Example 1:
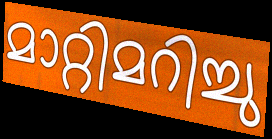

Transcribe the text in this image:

മാറ്റിമറിച്ചു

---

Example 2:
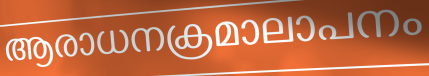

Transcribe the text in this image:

ആരാധനക്രമാലാപനം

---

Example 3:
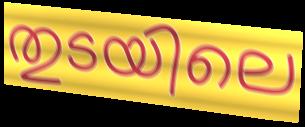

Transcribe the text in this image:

തുടയിലെ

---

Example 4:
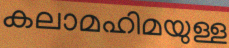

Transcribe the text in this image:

കലാമഹിമയുള്ള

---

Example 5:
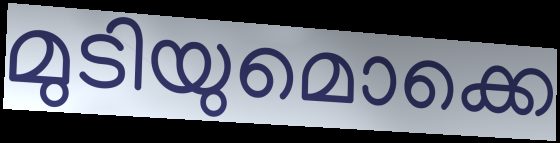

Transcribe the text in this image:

മുടിയുമൊക്കെ